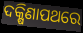
ଦକ୍ଷିଣାପଥରେ